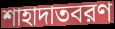
শাহাদাতবরণ